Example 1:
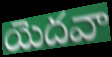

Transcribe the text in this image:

యెదవా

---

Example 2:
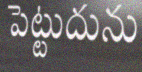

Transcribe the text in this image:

పెట్టుదును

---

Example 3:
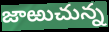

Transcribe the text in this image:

జాఱుచున్న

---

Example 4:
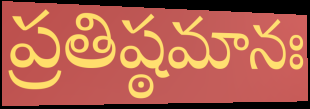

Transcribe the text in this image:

ప్రతిష్ఠమానః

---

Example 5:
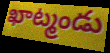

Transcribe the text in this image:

ఖాట్మండు